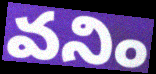
వనిం